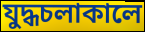
যুদ্ধচলাকালে